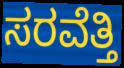
ಸರವೆತ್ತಿ